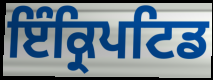
ਇੰਕ੍ਰਿਪਟਿਡ